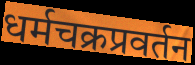
धर्मचक्रप्रवर्तन